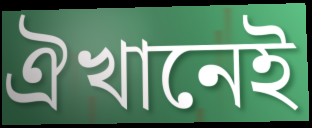
ঐখানেই